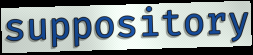
suppository